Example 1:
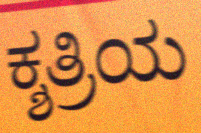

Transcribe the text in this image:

ಕ್ಶತ್ರಿಯ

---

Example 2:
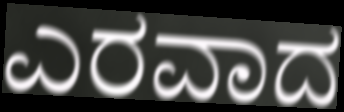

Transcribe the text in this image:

ಎರವಾದ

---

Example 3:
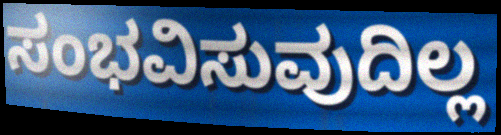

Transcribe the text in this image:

ಸಂಭವಿಸುವುದಿಲ್ಲ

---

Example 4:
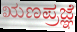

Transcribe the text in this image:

ಋಣಪ್ರಜ್ಞೆ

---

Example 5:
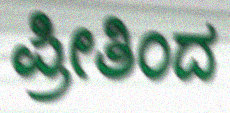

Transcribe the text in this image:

ಪ್ರೀತಿಂದ